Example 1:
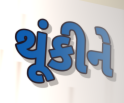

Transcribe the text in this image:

થૂંકીને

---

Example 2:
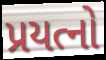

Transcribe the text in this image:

પ્રયત્નો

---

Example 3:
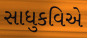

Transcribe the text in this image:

સાધુકવિએ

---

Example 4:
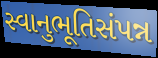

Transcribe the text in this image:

સ્વાનુભૂતિસંપન્ન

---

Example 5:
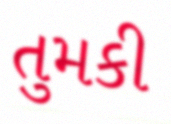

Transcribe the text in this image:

તુમકી